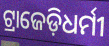
ଟ୍ରାଜେଡ଼ିଧର୍ମୀ